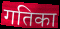
गतिका